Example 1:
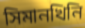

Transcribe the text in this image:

সিমানখিনি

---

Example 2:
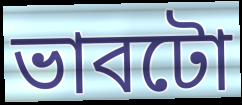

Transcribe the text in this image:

ভাবটো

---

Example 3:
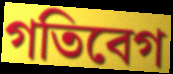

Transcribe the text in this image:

গতিবেগ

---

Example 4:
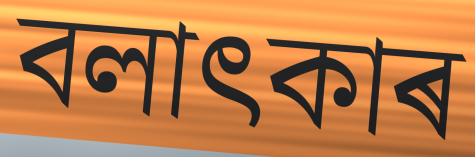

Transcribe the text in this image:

বলাৎকাৰ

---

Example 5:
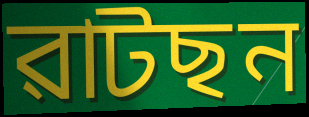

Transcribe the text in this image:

ৱাটছন